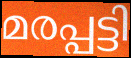
മരപ്പട്ടി